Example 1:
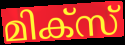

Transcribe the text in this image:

മിക്സ്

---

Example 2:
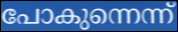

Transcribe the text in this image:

പോകുന്നെന്ന്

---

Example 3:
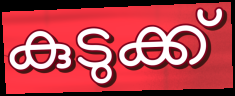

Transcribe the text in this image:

കുടുക്ക്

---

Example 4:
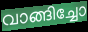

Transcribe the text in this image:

വാങ്ങിച്ചോ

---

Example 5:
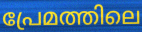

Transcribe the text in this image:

പ്രേമത്തിലെ